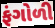
ફંગોળી